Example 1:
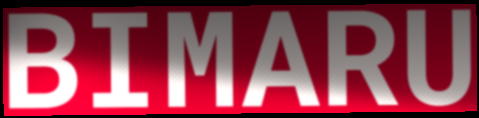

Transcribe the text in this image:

BIMARU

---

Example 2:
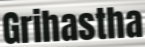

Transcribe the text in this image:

Grihastha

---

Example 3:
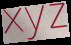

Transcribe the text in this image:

xyz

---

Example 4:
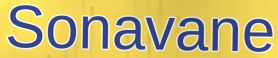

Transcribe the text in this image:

Sonavane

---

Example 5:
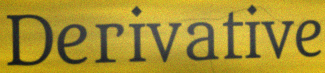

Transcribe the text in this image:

Derivative